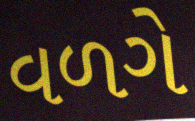
વળગે